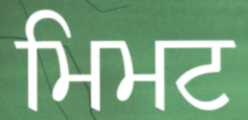
ਮਿਮਟ